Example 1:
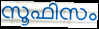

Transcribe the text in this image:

സൂഫിസം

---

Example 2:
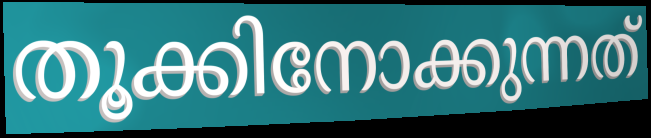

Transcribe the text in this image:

തൂക്കിനോക്കുന്നത്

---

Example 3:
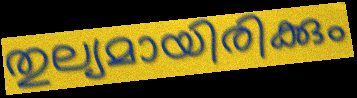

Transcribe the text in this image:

തുല്യമായിരിക്കും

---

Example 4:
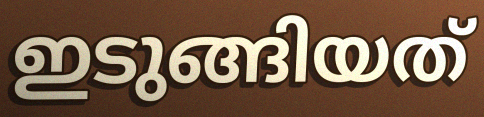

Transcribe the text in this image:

ഇടുങ്ങിയത്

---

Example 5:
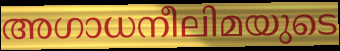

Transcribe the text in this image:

അഗാധനീലിമയുടെ